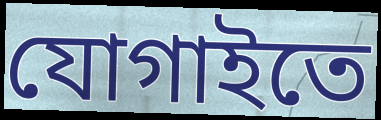
যোগাইতে